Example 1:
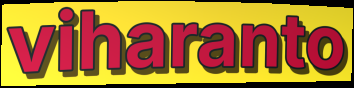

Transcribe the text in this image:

viharanto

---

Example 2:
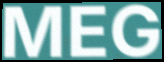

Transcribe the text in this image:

MEG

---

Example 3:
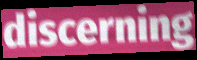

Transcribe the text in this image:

discerning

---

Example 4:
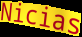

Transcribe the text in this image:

Nicias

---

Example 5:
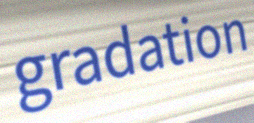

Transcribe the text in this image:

gradation